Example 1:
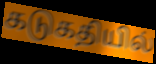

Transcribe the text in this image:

கடுகதியில்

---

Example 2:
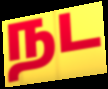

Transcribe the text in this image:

நட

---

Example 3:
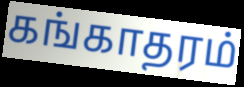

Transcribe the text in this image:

கங்காதரம்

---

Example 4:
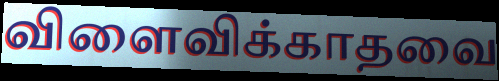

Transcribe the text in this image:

விளைவிக்காதவை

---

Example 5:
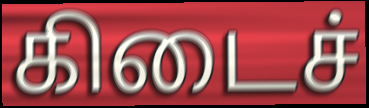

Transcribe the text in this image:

கிடைச்